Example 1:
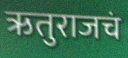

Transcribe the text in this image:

ऋतुराजचं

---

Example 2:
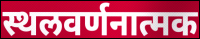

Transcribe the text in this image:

स्थलवर्णनात्मक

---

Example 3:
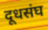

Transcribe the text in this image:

दूधसंघ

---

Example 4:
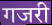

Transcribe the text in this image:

गजरी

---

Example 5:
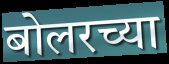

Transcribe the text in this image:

बोलरच्या